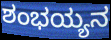
ಶಂಭಯ್ಯನ